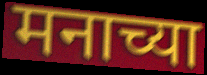
मनाच्‍या